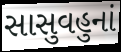
સાસુવહુનાં